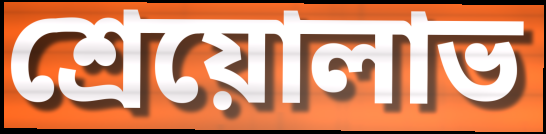
শ্রেয়োলাভ